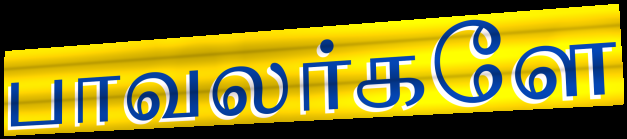
பாவலர்களே